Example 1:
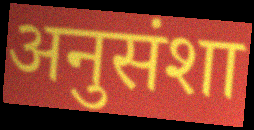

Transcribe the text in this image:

अनुसंशा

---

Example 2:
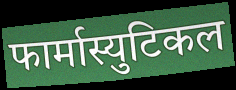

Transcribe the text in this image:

फार्मास्युटिकल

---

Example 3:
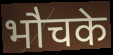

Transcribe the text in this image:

भौचके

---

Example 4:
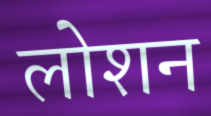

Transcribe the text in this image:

लोशन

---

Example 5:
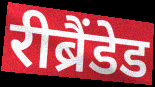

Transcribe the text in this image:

रीब्रैंडेड